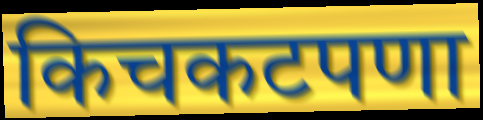
किचकटपणा